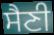
ਸੈਣੀ